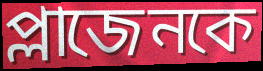
প্লাজেনকে